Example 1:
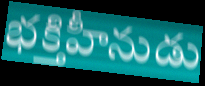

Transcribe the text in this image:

భక్తిహీనుడు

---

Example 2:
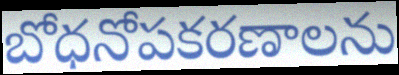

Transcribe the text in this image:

బోధనోపకరణాలను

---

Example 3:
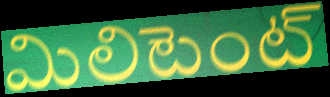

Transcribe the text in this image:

మిలిటెంట్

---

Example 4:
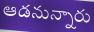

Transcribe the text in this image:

ఆడనున్నారు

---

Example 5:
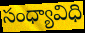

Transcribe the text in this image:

సంధ్యావిధి